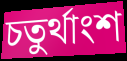
চতুৰ্থাংশ